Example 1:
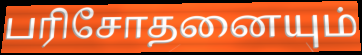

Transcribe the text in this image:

பரிசோதனையும்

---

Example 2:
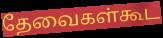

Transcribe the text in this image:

தேவைகள்கூட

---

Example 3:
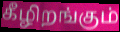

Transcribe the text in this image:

கீழிறங்கும்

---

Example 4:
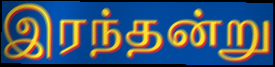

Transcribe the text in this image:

இரந்தன்று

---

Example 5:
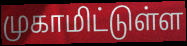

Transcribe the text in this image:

முகாமிட்டுள்ள